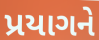
પ્રયાગને